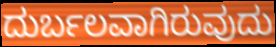
ದುರ್ಬಲವಾಗಿರುವುದು